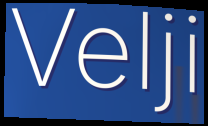
Velji